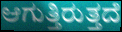
ಆಗುತ್ತಿರುತ್ತದೆ